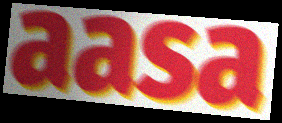
aasa